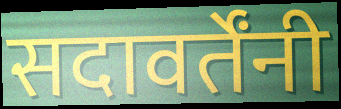
सदावर्तेंनी